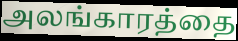
அலங்காரத்தை